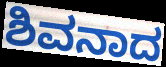
ಶಿವನಾದ